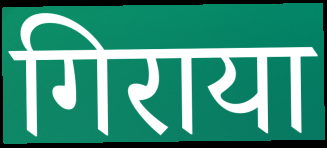
गिराया